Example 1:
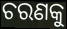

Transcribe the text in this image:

ଚରଣକୁ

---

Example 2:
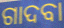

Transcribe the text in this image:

ଗାଦବା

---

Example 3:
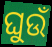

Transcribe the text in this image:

ଘୁଉଁ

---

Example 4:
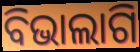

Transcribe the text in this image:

ବିଭାଲାଗି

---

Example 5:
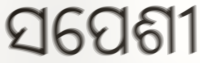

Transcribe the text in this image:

ସପେଶୀ